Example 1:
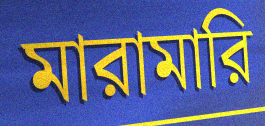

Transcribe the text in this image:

মারামারি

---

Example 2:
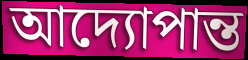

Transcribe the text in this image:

আদ্যোপান্ত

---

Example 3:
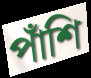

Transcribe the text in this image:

পাঁশি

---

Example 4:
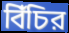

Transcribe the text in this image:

বিঁচির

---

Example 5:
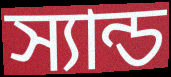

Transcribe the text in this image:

স্যান্ড